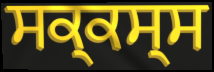
ਸਕ੍ਕਸ੍ਸ